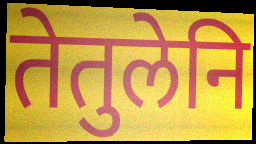
तेतुलेनि